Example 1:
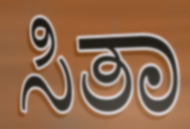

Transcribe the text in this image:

ಸಿತಾ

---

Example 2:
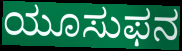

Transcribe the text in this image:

ಯೂಸುಫನ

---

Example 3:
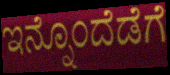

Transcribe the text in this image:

ಇನ್ನೊಂದೆಡೆಗೆ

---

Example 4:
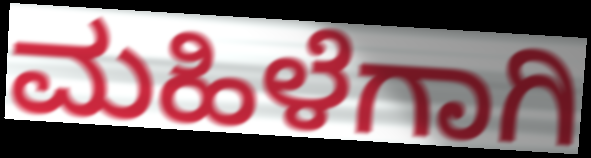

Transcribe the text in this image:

ಮಹಿಳೆಗಾಗಿ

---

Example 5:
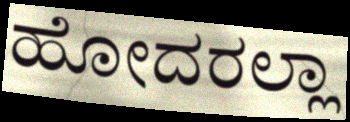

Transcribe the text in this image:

ಹೋದರಲ್ಲಾ